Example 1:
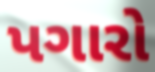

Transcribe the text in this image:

પગારો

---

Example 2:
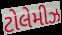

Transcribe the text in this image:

ટોલેમીઝ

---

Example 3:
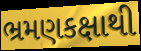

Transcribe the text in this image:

ભ્રમણકક્ષાથી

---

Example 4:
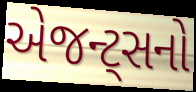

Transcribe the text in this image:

એજન્ટ્સનો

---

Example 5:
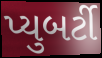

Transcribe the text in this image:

પ્યુબર્ટી